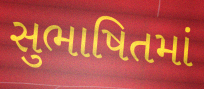
સુભાષિતમાં